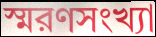
স্মরণসংখ্যা